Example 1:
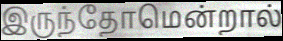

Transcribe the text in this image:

இருந்தோமென்றால்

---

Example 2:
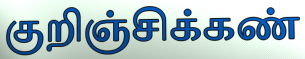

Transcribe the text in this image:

குறிஞ்சிக்கண்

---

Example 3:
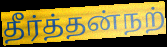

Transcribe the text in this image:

தீர்த்தன்நற்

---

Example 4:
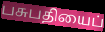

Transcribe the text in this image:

பசுபதியைப்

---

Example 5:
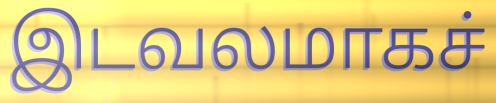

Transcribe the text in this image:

இடவலமாகச்